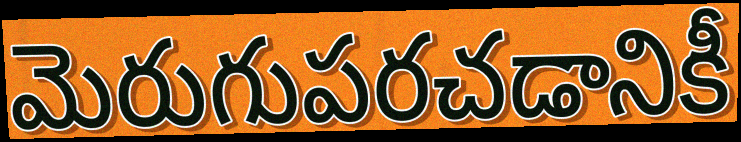
మెరుగుపరచడానికీ